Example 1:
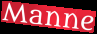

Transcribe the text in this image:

Manne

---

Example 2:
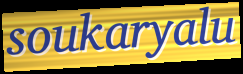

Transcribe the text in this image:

soukaryalu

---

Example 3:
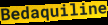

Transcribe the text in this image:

Bedaquiline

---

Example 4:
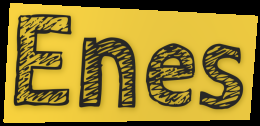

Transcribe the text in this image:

Enes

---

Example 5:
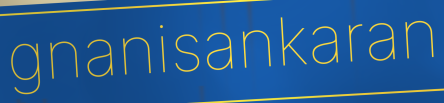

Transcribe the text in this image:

gnanisankaran